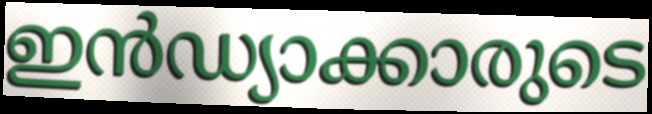
ഇൻഡ്യാക്കാരുടെ